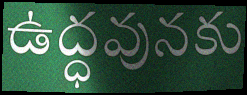
ఉద్ధవునకు